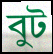
বুট